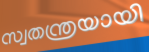
സ്വതന്ത്രയായി